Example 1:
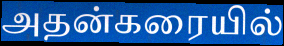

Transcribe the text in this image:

அதன்கரையில்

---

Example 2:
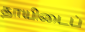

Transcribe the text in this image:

தாயிடைப்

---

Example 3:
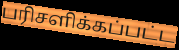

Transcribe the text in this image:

பரிசளிக்கப்பட்ட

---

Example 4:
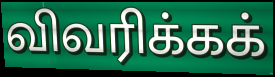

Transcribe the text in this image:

விவரிக்கக்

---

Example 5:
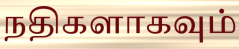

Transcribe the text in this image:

நதிகளாகவும்